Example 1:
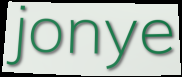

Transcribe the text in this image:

jonye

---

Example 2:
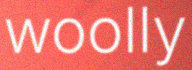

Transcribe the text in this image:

woolly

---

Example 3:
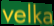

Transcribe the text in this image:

velka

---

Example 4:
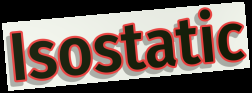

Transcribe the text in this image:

Isostatic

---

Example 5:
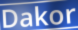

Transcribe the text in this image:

Dakor